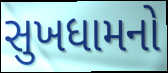
સુખધામનો